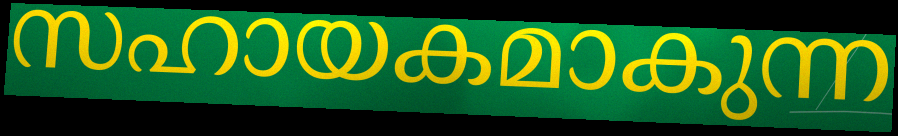
സഹായകമാകുന്ന